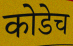
कोडेच